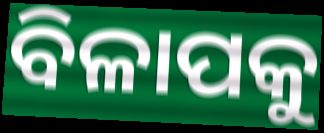
ବିଳାପକୁ